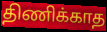
திணிக்காத